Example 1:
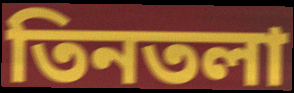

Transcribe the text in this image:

তিনতলা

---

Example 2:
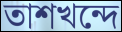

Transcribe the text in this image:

তাশখন্দে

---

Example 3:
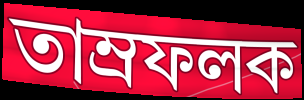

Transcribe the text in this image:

তাম্রফলক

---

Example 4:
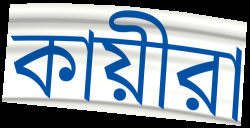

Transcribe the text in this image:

কায়ীরা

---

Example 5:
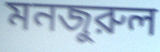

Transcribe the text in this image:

মনজুরুল